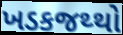
ખડકજથ્થો